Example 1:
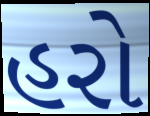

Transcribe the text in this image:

હરો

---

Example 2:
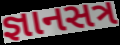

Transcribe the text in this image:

જ્ઞાનસત્ર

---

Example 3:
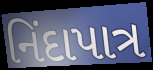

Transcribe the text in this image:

નિંદાપાત્ર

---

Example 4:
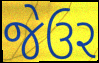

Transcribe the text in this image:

જેઉર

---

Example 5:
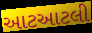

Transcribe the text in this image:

આટઆટલી